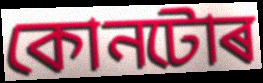
কোনটোৰ